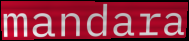
mandara